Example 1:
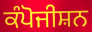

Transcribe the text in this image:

ਕੰਪੋਜੀਸ਼ਨ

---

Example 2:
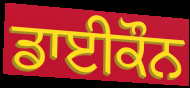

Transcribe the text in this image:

ਡਾਈਕੌਨ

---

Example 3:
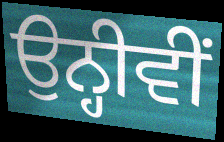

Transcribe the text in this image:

ਉਨ੍ਹੀਵੀਂ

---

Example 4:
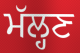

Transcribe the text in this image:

ਮੱਲ੍ਹਣ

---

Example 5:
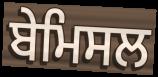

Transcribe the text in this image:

ਬੇਮਿਸਲ